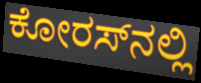
ಕೋರಸ್‌ನಲ್ಲಿ